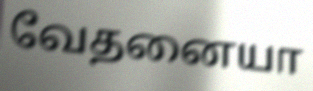
வேதனையா